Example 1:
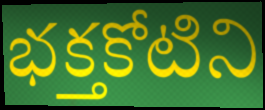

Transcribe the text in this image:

భక్తకోటిని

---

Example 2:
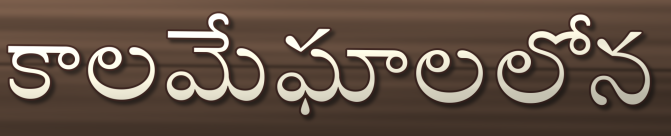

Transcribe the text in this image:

కాలమేఘాలలోన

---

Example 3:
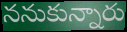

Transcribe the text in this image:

ననుకున్నారు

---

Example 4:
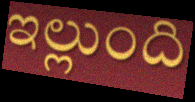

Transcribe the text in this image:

ఇల్లుంది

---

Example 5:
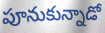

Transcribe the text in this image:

పూనుకున్నాడో